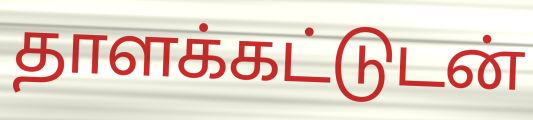
தாளக்கட்டுடன்